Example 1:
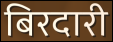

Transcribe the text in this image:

बिरदारी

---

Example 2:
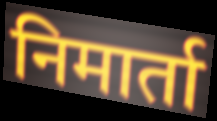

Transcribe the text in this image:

निमार्ता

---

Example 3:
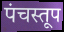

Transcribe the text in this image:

पंचस्तूप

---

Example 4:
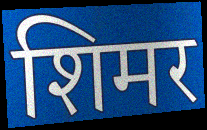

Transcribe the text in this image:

शिमर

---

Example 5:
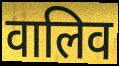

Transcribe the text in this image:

वालिव